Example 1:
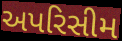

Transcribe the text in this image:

અપરિસીમ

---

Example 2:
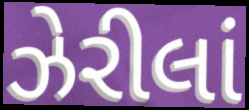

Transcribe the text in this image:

ઝેરીલાં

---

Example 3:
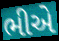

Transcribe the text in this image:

ભીએ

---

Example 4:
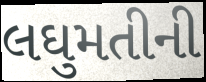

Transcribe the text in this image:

લઘુમતીની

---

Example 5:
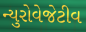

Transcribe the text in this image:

ન્યુરોવેજેટીવ